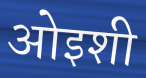
ओइशी